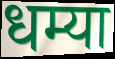
धम्या